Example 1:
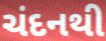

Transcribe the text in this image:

ચંદનથી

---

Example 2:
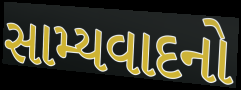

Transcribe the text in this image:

સામ્યવાદનો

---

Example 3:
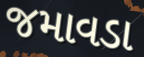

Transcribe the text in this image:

જમાવડા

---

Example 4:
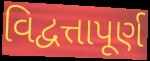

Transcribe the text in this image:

વિદ્વત્તાપૂર્ણ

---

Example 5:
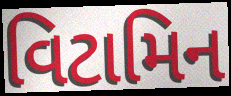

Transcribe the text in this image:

વિટામિન